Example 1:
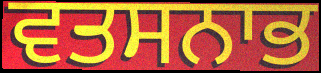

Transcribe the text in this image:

ਵਤਸਨਾਭ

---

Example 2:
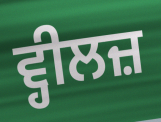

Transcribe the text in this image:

ਵ੍ਹੀਲਜ਼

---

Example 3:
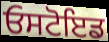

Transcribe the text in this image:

ਓਸਟੋਇਡ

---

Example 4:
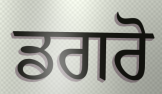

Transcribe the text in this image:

ਡਗਰੋ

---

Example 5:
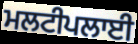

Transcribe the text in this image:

ਮਲਟੀਪਲਾਈ